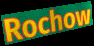
Rochow